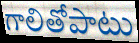
గాలితోపాటు